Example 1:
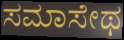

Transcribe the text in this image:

ಸಮಾಸೇಥ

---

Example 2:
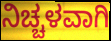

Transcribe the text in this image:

ನಿಚ್ಚಳವಾಗಿ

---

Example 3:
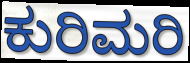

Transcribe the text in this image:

ಕುರಿಮರಿ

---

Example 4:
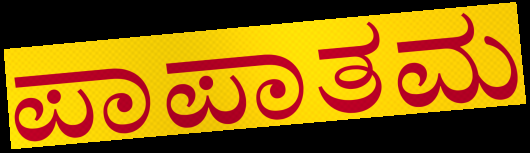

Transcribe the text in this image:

ಪಾಪಾತಮ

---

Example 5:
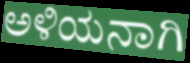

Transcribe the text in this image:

ಅಳಿಯನಾಗಿ